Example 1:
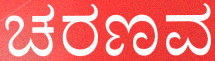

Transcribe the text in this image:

ಚರಣವ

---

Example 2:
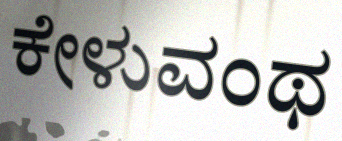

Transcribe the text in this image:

ಕೇಳುವಂಥ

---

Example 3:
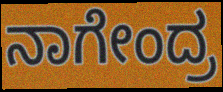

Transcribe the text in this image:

ನಾಗೇಂದ್ರ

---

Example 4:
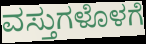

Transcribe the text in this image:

ವಸ್ತುಗಳೊಳಗೆ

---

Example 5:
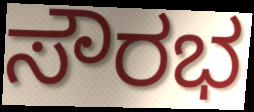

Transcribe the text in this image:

ಸೌರಭ